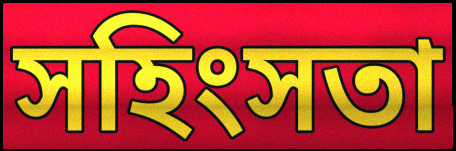
সহিংসতা